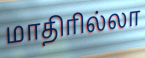
மாதிரில்லா